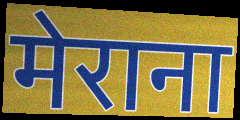
मेराना